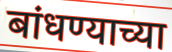
बांधण्याच्या